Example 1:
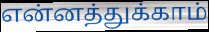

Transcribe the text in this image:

என்னத்துக்காம்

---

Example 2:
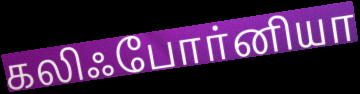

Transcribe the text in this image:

கலிஃபோர்னியா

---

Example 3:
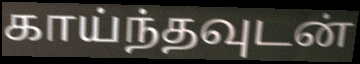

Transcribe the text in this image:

காய்ந்தவுடன்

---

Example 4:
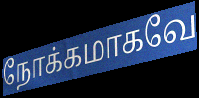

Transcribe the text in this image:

நோக்கமாகவே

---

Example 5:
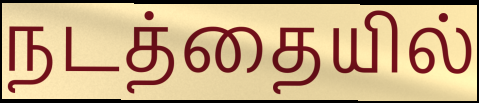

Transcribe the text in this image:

நடத்தையில்